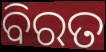
ବିରତ